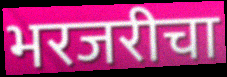
भरजरीचा